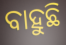
ବାହୁଛି